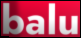
balu